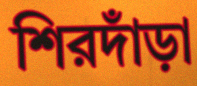
শিরদাঁড়া